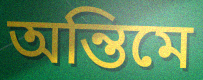
অন্তিমে